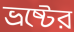
ভ্রষ্টের